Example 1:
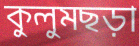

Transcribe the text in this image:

কুলুমছড়া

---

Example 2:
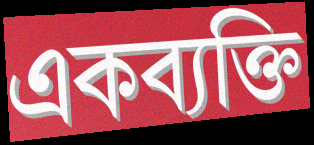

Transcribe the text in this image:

একব্যক্তি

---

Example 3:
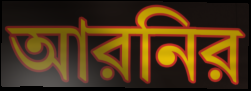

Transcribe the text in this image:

আরনির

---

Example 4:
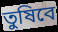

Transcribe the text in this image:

তুষিবে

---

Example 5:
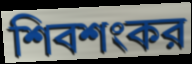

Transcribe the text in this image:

শিবশংকর